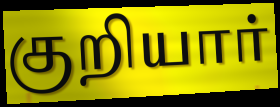
குறியார்